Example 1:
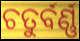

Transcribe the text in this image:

ଚତୁର୍ବର୍ଣ୍ଣ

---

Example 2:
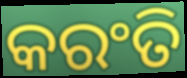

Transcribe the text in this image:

କରଂତି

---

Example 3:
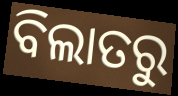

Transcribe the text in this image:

ବିଲାତରୁ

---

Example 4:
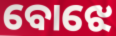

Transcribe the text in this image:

ବୋଝେ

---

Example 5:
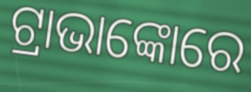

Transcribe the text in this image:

ଟ୍ରାଭାଙ୍କୋରେ